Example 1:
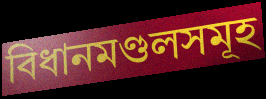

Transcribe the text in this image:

বিধানমণ্ডলসমূহ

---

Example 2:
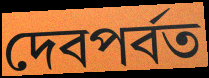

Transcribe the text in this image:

দেবপর্বত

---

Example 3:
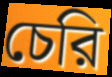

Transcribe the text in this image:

চেরি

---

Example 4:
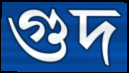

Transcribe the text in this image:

গুদ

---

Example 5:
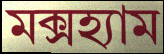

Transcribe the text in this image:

মক্সহ্যাম